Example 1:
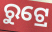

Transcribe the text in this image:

ରୁଟ୍ରେ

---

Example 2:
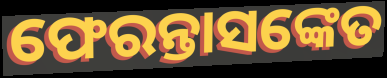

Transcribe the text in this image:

ଫେରନ୍ତାସଙ୍କେତ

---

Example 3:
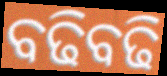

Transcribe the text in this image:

ବଢିବଢି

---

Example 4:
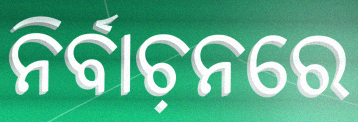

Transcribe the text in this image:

ନିର୍ବାଚ଼ନରେ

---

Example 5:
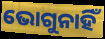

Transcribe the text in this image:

ଭୋଗୁନାହିଁ